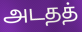
அடதத்